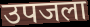
उपजला